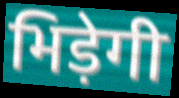
भिड़ेगी